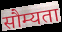
सौम्यता